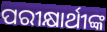
ପରୀକ୍ଷାର୍ଥୀଙ୍କ